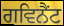
ਗਵਿਨੈਂਟ